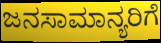
ಜನಸಾಮಾನ್ಯರಿಗೆ